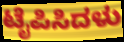
ಟೈಪಿಸಿದಳು